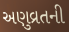
અણુવ્રતની